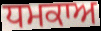
ਧਮਕਾਅ